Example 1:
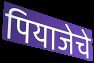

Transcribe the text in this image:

पियाजेचे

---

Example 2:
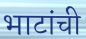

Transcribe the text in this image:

भाटांची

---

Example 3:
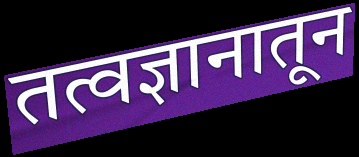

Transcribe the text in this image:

तत्वज्ञानातून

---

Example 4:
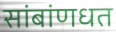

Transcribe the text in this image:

सांबांणधत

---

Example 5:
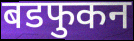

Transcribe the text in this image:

बडफुकन